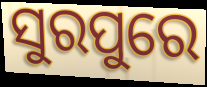
ସୁରପୁରେ